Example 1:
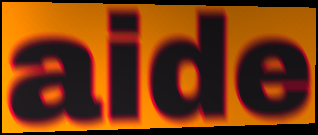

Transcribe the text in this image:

aide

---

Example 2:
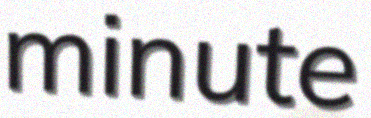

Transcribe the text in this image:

minute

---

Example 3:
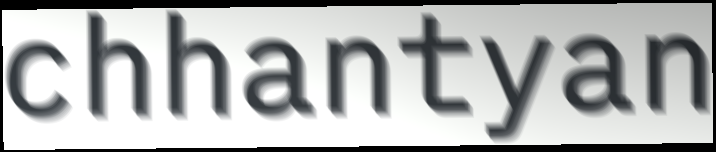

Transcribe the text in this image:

chhantyan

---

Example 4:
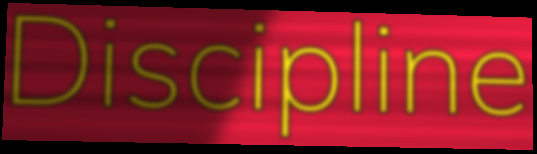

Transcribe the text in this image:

Discipline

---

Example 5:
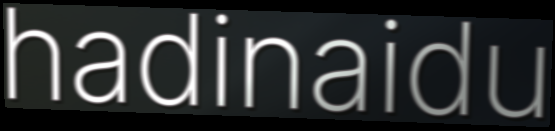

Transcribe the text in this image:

hadinaidu